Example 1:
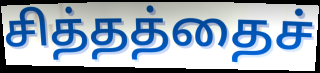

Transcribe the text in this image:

சித்தத்தைச்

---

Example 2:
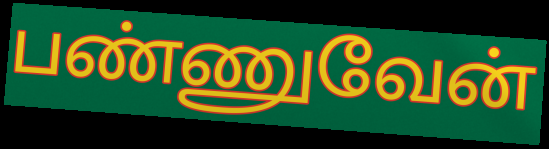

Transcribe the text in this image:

பண்ணுவேன்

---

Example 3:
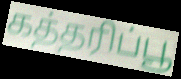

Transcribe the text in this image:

கத்தரிப்பூ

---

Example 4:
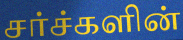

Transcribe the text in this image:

சர்ச்களின்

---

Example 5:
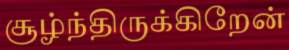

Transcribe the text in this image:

சூழ்ந்திருக்கிறேன்